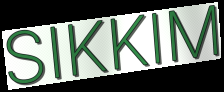
SIKKIM